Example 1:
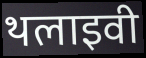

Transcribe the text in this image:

थलाइवी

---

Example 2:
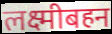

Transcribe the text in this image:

लक्ष्मीबहन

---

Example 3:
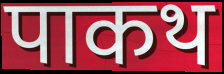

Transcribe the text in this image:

पाकथ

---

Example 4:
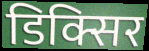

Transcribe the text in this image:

डिक्सिर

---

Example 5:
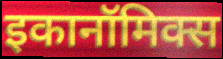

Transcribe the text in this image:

इकानॉमिक्स